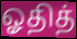
ஓதித்